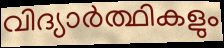
വിദ്യാർത്ഥികളും